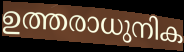
ഉത്തരാധുനിക